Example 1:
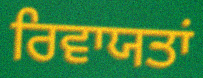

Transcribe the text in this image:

ਰਿਵਾਯਤਾਂ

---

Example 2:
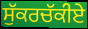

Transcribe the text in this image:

ਸੁੱਕਰਚੱਕੀਏ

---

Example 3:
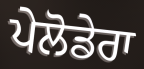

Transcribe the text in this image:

ਪੇਲੋਡੇਰਾ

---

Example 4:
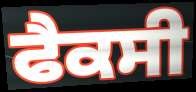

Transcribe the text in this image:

ਫੈਕਸੀ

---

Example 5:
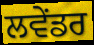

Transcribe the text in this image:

ਲਵੇਂਡਰ